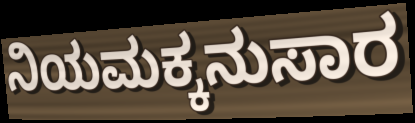
ನಿಯಮಕ್ಕನುಸಾರ